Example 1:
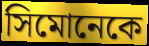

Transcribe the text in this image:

সিমোনেকে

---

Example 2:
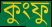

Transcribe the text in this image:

কুংফু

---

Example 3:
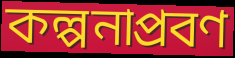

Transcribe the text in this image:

কল্পনাপ্রবণ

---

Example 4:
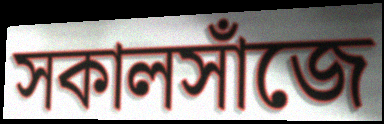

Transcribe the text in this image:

সকালসাঁজে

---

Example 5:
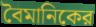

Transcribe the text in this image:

বৈমানিকের